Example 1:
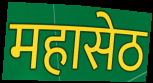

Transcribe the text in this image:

महासेठ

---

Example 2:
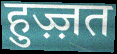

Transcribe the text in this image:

हुज़्ज़त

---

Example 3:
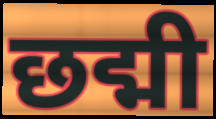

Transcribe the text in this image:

छद्मी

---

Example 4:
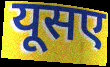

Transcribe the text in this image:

यूसए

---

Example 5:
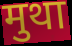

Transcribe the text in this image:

मुथा